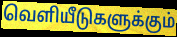
வெளியீடுகளுக்கும்